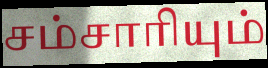
சம்சாரியும்